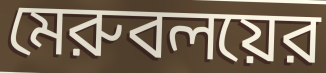
মেরুবলয়ের